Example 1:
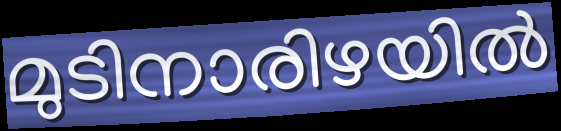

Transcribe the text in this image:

മുടിനാരിഴയിൽ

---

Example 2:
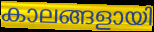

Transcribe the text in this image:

കാലങ്ങളായി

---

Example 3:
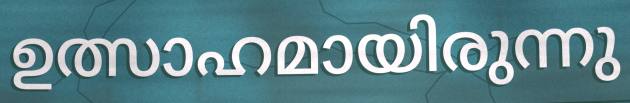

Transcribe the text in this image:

ഉത്സാഹമായിരുന്നു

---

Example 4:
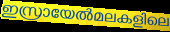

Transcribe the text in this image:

ഇസ്രായേൽമലകളിലെ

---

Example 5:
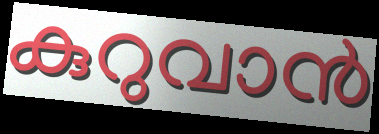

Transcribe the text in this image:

കുറുവാൻ